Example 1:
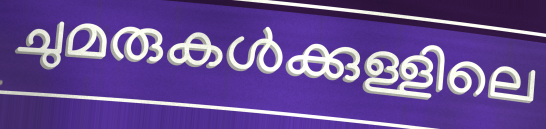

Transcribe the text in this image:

ചുമരുകൾക്കുള്ളിലെ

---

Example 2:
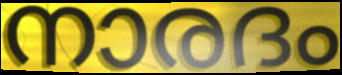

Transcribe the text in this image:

നാരദം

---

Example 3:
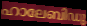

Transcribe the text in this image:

ഹാലേബിഡു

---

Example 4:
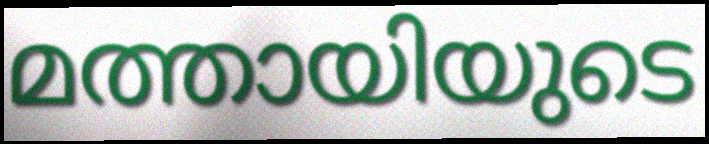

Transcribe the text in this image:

മത്തായിയുടെ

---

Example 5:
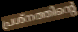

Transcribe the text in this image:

പ്രശ്നത്തിന്റെ